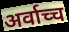
अर्वाच्च